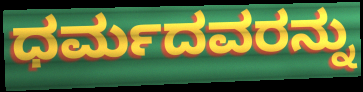
ಧರ್ಮದವರನ್ನು